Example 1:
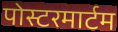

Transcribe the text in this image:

पोस्टरमार्टम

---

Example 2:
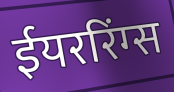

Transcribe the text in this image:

ईयररिंग्स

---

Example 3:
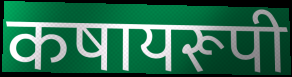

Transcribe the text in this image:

कषायरूपी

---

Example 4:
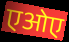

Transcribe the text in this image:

एओए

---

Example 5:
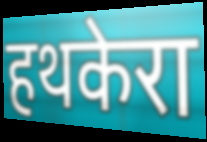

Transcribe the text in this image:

हथकेरा